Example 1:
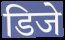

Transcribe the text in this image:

डिजे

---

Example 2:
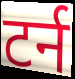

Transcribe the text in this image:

टर्न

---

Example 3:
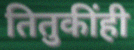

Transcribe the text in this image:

तितुकींही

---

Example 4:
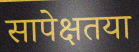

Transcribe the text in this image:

सापेक्षतया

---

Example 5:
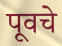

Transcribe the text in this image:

पूवचे